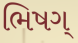
ભિષગ્